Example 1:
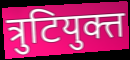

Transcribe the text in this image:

त्रुटियुक्त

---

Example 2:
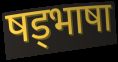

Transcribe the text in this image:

षड्भाषा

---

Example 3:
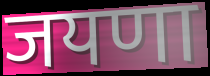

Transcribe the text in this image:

जयणा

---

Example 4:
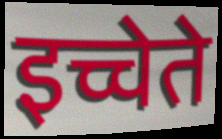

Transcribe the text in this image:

इच्चेते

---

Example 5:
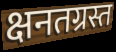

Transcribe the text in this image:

क्षनतग्रस्त